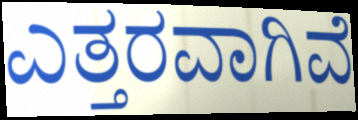
ಎತ್ತರವಾಗಿವೆ